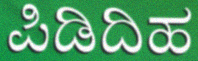
ಪಿಡಿದಿಹ